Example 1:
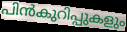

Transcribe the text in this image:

പിൻകുറിപ്പുകളും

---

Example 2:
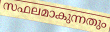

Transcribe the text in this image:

സഫലമാകുന്നതും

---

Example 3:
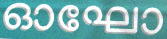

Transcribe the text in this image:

ഓഘോ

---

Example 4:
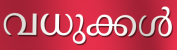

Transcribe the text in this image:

വധുക്കൾ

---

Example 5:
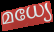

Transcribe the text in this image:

മധ്യേ